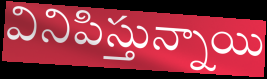
వినిపిస్తున్నాయి